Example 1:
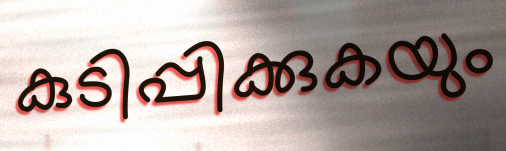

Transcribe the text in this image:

കുടിപ്പിക്കുകയും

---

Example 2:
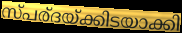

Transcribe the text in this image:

സ്പര്ദയ്ക്കിടയാക്കി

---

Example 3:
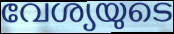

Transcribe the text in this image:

വേശ്യയുടെ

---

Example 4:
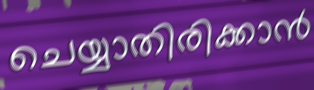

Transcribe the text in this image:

ചെയ്യാതിരിക്കാൻ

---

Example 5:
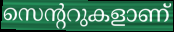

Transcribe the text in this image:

സെന്ററുകളാണ്